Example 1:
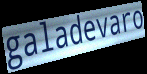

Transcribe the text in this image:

galadevaro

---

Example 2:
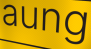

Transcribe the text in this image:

aung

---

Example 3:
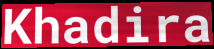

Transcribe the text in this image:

Khadira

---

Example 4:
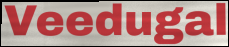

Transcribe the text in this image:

Veedugal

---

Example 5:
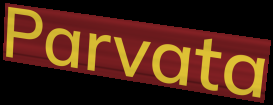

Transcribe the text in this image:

Parvata